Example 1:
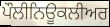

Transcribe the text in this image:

ਪੌਲੀਨਿਊਕਲੀਅਰ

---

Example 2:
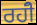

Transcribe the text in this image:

ਰਹੀਁ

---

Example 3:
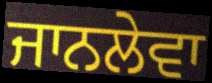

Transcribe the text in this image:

ਜਾਨਲੇਵਾ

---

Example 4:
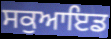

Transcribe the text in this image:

ਸਕੁਆਇਡ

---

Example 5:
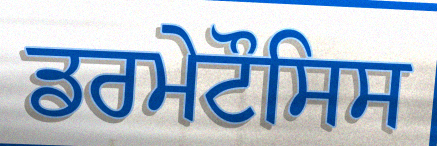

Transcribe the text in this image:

ਡਰਮੇਟੌਸਿਸ